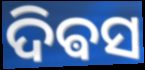
ଦିଵସ